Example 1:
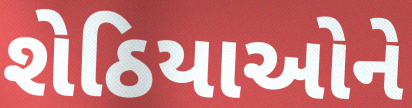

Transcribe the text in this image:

શેઠિયાઓને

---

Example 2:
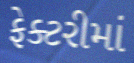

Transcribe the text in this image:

ફેક્ટરીમાં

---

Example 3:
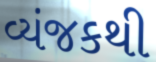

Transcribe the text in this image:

વ્યંજકથી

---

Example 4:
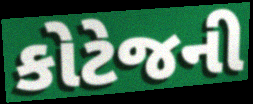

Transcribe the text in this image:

કોટેજની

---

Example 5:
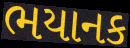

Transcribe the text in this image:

ભયાનક